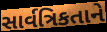
સાર્વત્રિકતાને